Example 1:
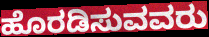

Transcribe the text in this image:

ಹೊರಡಿಸುವವರು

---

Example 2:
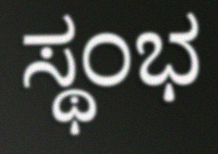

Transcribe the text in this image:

ಸ್ಥಂಭ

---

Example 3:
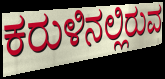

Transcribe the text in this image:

ಕರುಳಿನಲ್ಲಿರುವ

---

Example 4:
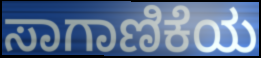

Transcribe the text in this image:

ಸಾಗಾಣಿಕೆಯ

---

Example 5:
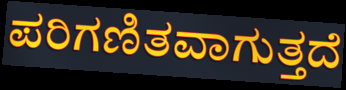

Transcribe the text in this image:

ಪರಿಗಣಿತವಾಗುತ್ತದೆ